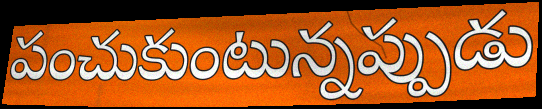
పంచుకుంటున్నప్పుడు